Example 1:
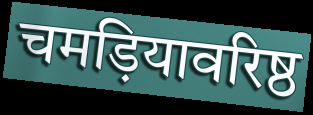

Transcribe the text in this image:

चमड़ियावरिष्ठ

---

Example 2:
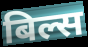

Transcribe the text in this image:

बिल्स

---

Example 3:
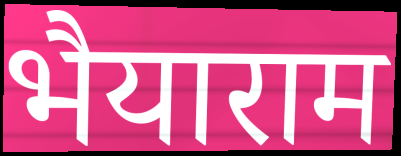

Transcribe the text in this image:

भैयाराम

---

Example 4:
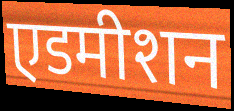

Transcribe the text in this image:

एडमीशन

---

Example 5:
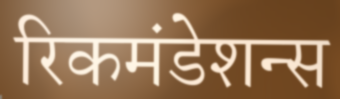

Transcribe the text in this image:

रिकमंडेशन्स